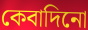
কেবাদিনো